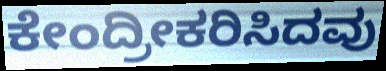
ಕೇಂದ್ರೀಕರಿಸಿದವು